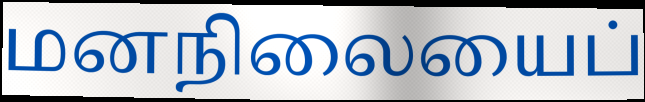
மனநிலையைப்